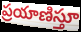
ప్రయాణిస్తూ